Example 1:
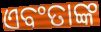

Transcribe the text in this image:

ଏବଂତାଙ୍କ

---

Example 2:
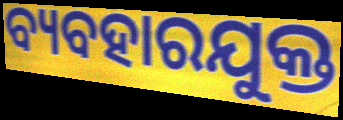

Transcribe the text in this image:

ବ୍ୟବହାରଯୁକ୍ତ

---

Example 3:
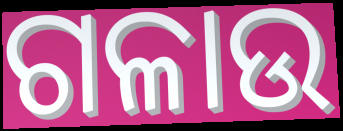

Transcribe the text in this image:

ଗଳାଉ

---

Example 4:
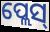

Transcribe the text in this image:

ପ୍ଲେସ୍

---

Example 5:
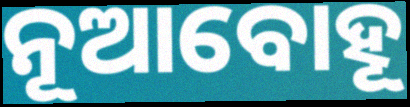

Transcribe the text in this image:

ନୂଆବୋହୂ